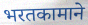
भरतकामाने